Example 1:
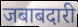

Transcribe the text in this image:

जबाबदारी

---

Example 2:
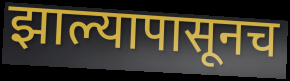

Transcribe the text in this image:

झाल्यापासूनच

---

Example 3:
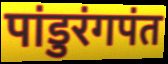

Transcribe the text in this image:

पांडुरंगपंत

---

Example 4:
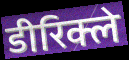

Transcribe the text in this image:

डीरिक्ले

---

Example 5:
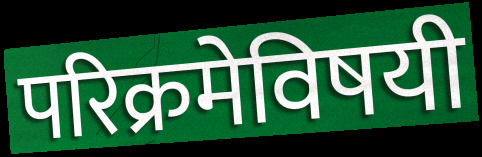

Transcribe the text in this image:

परिक्रमेविषयी